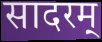
सादरम्